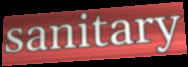
sanitary